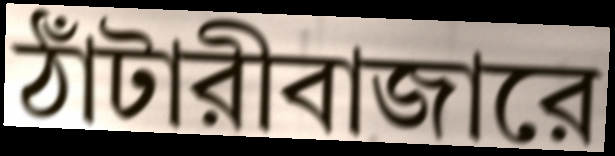
ঠাঁটারীবাজারে